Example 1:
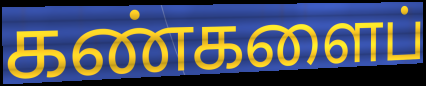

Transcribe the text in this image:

கண்களைப்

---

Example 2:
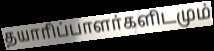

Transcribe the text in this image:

தயாரிப்பாளர்களிடமும்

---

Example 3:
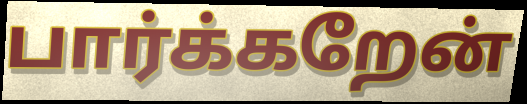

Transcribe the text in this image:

பார்க்கறேன்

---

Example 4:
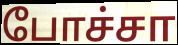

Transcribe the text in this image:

போச்சா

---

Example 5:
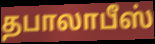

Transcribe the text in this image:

தபாலாபீஸ்